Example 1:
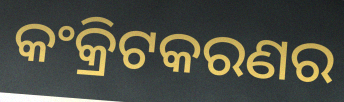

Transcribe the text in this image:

କଂକ୍ରିଟକରଣର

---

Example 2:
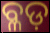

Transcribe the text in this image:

ବ୍ଳଡ଼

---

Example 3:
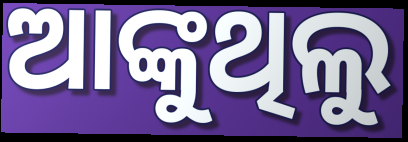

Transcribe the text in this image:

ଆଙ୍କୁଥିଲୁ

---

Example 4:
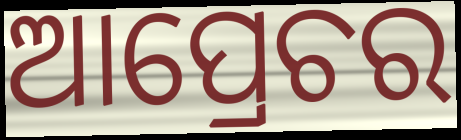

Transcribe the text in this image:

ଆପ୍ରେଚର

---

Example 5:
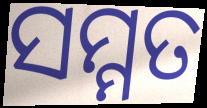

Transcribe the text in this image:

ସମ୍ମତ